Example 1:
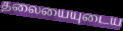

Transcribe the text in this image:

தலையையுடைய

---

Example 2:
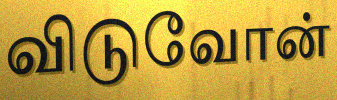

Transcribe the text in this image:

விடுவோன்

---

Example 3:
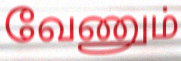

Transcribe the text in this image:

வேணும்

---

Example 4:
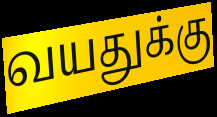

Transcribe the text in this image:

வயதுக்கு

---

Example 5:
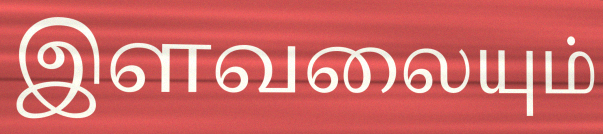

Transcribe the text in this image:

இளவலையும்